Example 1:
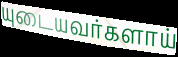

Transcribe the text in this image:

யுடையவர்களாய்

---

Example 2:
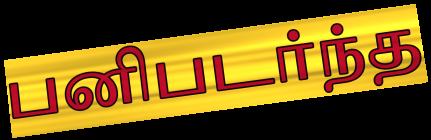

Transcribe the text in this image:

பனிபடர்ந்த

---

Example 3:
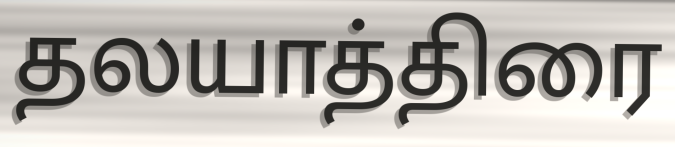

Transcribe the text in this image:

தலயாத்திரை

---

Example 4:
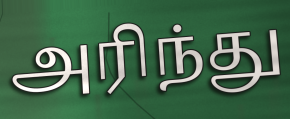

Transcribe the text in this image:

அரிந்து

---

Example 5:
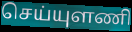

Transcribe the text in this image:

செய்யுளணி